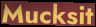
Mucksit